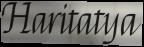
Haritatya